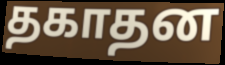
தகாதன